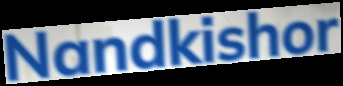
Nandkishor